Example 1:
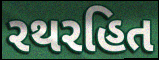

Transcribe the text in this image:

રથરહિત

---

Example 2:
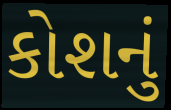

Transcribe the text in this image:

કોશનું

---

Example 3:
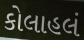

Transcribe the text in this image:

કોલાહલં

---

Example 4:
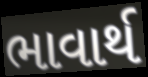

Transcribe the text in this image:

ભાવાર્થ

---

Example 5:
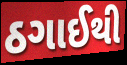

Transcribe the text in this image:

ઠગાઈથી